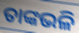
ତାଙ୍କଭଳି